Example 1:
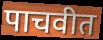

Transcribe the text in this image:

पाचवीत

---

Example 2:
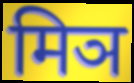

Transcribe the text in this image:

मिञ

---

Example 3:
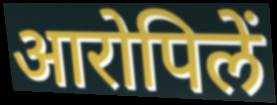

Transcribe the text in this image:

आरोपिलें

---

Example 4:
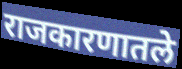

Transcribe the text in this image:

राजकारणातले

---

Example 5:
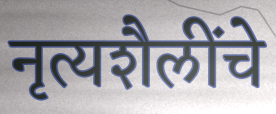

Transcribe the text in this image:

नृत्यशैलींचे